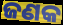
ଜଣକ